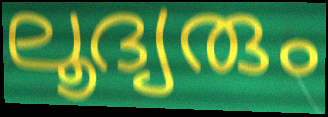
ലൂദ്യരും